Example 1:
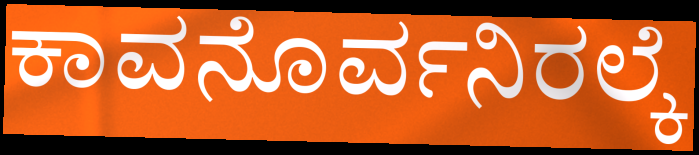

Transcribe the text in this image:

ಕಾವನೊರ್ವನಿರಲ್ಕೆ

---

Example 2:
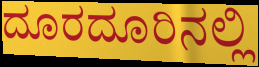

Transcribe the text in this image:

ದೂರದೂರಿನಲ್ಲಿ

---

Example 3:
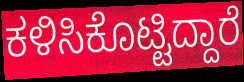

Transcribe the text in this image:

ಕಳಿಸಿಕೊಟ್ಟಿದ್ದಾರೆ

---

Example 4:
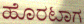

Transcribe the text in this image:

ಹೊರಟಾಗ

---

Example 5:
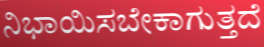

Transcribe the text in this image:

ನಿಭಾಯಿಸಬೇಕಾಗುತ್ತದೆ